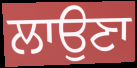
ਲਾਉਣਾ